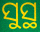
ସୁସ୍ଥ